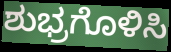
ಶುಭ್ರಗೊಳಿಸಿ